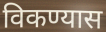
विकण्यास